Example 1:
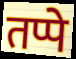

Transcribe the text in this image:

तप्पे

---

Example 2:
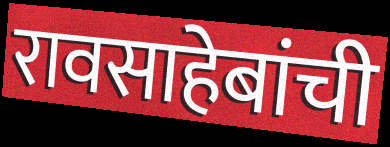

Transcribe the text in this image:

रावसाहेबांची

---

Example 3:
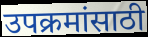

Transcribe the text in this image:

उपक्रमांसाठी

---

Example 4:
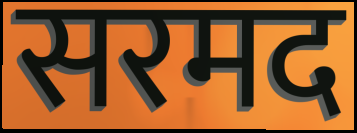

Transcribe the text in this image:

सरमद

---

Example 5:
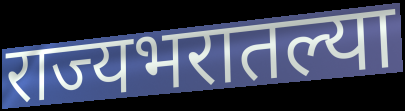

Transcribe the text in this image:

राज्यभरातल्या